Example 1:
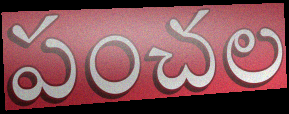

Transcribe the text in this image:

పంచల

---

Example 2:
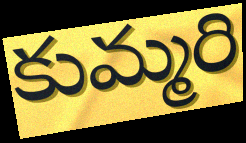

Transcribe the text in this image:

కుమ్మరి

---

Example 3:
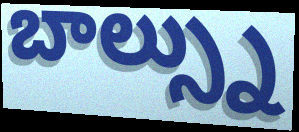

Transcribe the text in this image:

బాల్స్ను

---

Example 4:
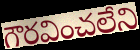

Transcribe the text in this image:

గౌరవించలేని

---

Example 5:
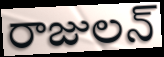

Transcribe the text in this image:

రాజులన్